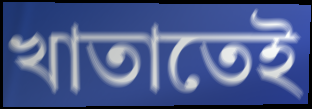
খাতাতেই